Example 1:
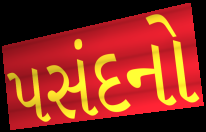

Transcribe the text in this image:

પસંદનો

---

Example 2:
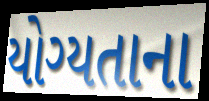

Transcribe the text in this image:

યોગ્યતાના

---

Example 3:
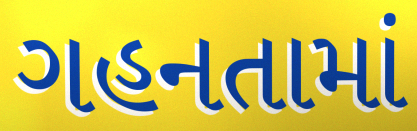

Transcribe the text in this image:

ગહનતામાં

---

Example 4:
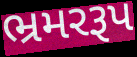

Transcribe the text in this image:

ભ્રમરરૂપ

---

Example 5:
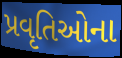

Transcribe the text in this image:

પ્રવૃતિઓના